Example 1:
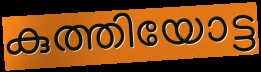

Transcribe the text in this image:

കുത്തിയോട്ട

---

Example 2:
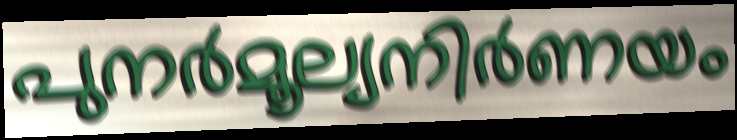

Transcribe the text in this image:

പുനർമൂല്യനിർണയം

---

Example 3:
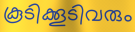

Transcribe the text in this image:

കൂടിക്കൂടിവരും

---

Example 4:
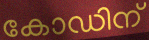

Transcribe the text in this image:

കോഡിന്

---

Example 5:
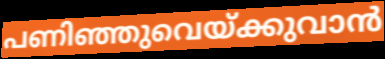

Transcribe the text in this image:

പണിഞ്ഞുവെയ്ക്കുവാൻ